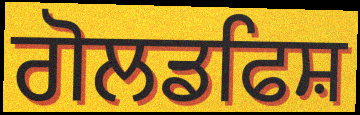
ਗੋਲਡਫਿਸ਼